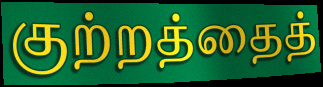
குற்றத்தைத்